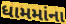
ધામમાંના